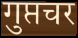
गुप्तचर